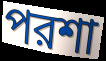
পরশা